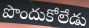
పొందుకోలేడు